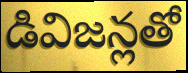
డివిజన్లతో